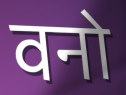
वनो